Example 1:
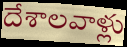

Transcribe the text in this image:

దేశాలవాళ్లు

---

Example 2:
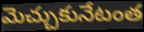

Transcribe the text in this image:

మెచ్చుకునేటంత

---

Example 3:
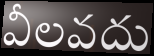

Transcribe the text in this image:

వీలవదు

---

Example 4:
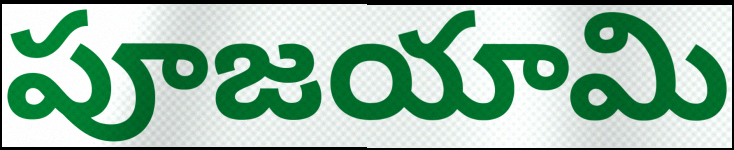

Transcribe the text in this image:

పూజయామి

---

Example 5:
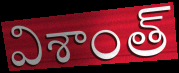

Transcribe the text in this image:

విశాంత్